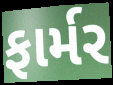
ફાર્મર